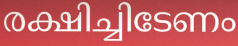
രക്ഷിച്ചിടേണം